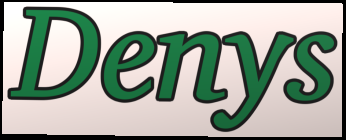
Denys